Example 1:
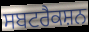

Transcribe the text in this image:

ਸਬਟਰੈਕਸ਼ਨ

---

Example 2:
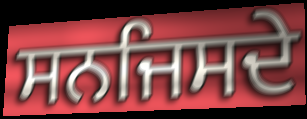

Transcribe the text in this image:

ਸਨਜਿਸਦੇ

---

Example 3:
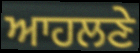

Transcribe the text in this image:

ਆਹਲਣੇ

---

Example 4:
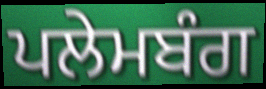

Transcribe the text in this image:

ਪਲੇਮਬੰਗ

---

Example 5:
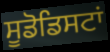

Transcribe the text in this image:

ਸੂਡੋਡਿਸਟਾਂ